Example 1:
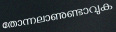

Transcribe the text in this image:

തോന്നലാണുണ്ടാവുക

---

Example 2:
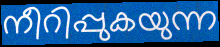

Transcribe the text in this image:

നീറിപ്പുകയുന്ന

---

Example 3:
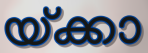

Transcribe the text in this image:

യ്‌ക്കാ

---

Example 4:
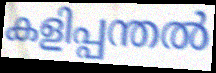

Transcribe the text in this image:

കളിപ്പന്തൽ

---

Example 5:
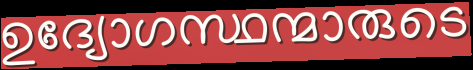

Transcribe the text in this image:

ഉദ്യോഗസ്ഥന്മാരുടെ